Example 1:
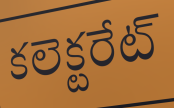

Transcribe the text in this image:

కలెక్టరేట్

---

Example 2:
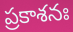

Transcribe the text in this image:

ప్రకాశనః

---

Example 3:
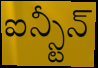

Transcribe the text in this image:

ఐన్స్టీన్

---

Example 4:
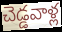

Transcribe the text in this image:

చెడ్డవాళ్ల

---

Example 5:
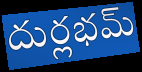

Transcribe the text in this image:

దుర్లభమ్